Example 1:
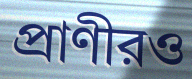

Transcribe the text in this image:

প্রাণীরও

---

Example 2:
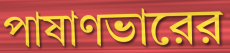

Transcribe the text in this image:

পাষাণভারের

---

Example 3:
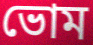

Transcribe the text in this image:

ভোম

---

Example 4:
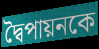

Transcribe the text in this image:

দ্বৈপায়নকে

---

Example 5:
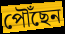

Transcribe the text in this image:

পৌঁছেন